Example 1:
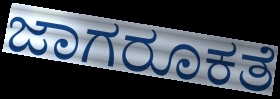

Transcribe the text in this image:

ಜಾಗರೂಕತೆ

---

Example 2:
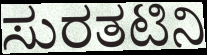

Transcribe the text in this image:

ಸುರತಟಿನಿ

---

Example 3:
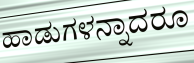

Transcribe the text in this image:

ಹಾಡುಗಳನ್ನಾದರೂ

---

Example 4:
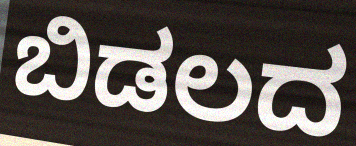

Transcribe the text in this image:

ಬಿಡಲದ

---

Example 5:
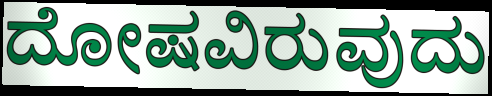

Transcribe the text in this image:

ದೋಷವಿರುವುದು